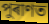
পুৰাণত